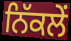
ਨਿੱਕਲੇਂ